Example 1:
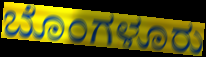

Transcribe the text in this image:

ಬೊಂಗಳೂರು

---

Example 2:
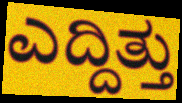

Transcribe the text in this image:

ಎದ್ದಿತ್ತು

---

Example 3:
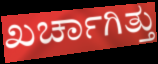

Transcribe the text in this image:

ಖರ್ಚಾಗಿತ್ತು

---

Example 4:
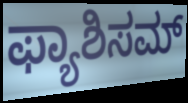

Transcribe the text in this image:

ಫ್ಯಾಶಿಸಮ್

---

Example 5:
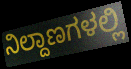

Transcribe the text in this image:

ನಿಲ್ದಾಣಗಳಲ್ಲಿ